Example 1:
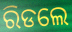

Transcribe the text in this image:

ରିଡଲେ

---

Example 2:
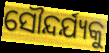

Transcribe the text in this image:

ସୌନ୍ଦର୍ଯ୍ୟକୁ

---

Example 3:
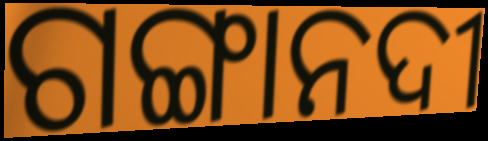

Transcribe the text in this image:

ଗଙ୍ଗାନଦୀ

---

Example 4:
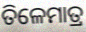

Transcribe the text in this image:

ତିଳେମାତ୍ର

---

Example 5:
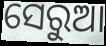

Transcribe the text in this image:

ସେରୁଆ